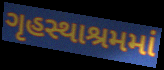
ગૃહસ્થાશ્રમમાં